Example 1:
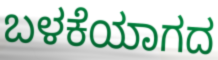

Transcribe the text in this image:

ಬಳಕೆಯಾಗದ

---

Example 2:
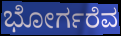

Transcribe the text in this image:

ಭೋರ್ಗರೆವ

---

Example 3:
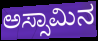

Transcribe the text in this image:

ಅಸ್ಸಾಮಿನ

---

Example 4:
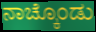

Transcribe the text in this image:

ನಾಚ್ಕೊಂಡು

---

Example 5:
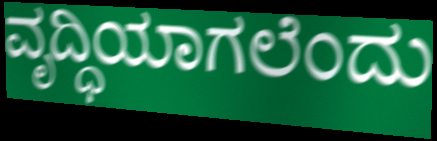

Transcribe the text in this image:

ವೃದ್ಧಿಯಾಗಲೆಂದು